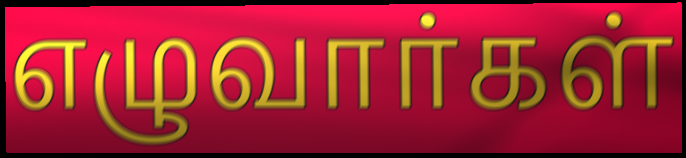
எழுவார்கள்